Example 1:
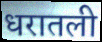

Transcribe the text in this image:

धरातली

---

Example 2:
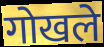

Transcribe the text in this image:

गोखले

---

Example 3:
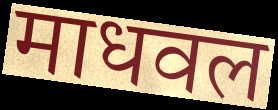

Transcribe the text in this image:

माधवल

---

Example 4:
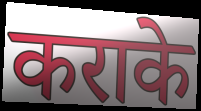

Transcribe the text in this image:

कराके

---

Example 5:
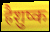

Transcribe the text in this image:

हैशुष्क